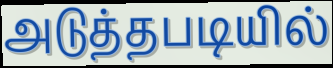
அடுத்தபடியில்